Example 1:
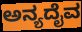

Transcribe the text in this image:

ಅನ್ಯದೈವ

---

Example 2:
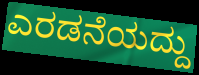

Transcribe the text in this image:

ಎರಡನೆಯದ್ದು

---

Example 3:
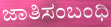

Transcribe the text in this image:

ಜಾತಿಸಂಬಂಧಿ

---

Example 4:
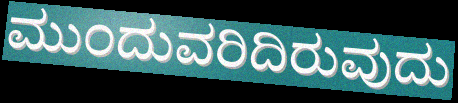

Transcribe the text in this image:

ಮುಂದುವರಿದಿರುವುದು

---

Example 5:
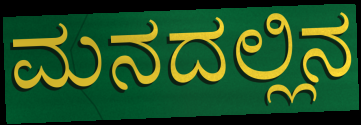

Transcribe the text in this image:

ಮನದಲ್ಲಿನ